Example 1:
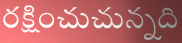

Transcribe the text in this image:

రక్షించుచున్నది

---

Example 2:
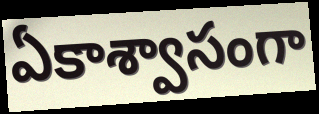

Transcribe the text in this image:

ఏకాశ్వాసంగా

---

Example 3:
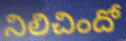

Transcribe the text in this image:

నిలిచిందో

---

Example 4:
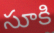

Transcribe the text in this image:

సూకి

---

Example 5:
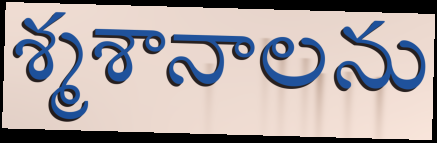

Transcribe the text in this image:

శ్మశానాలను